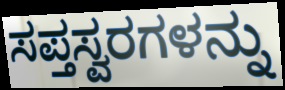
ಸಪ್ತಸ್ವರಗಳನ್ನು